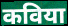
कविया